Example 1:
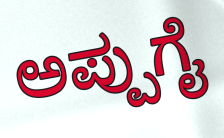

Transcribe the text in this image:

ಅಪ್ಪುಗೈ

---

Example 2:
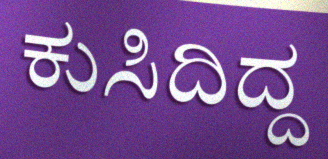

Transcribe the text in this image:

ಕುಸಿದಿದ್ದ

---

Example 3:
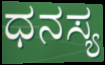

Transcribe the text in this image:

ಧನಸ್ಯ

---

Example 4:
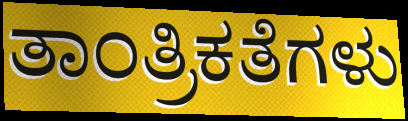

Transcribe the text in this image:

ತಾಂತ್ರಿಕತೆಗಳು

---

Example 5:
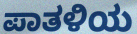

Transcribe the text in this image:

ಪಾತಳಿಯ